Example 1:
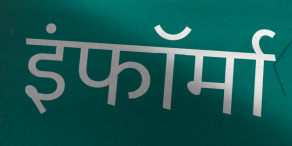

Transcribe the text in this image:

इंफॉर्मा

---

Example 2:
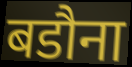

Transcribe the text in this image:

बडौना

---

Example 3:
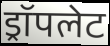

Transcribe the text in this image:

ड्रॉपलेट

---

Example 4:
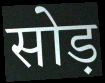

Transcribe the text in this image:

सोड़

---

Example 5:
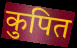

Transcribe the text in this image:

कुपित